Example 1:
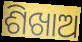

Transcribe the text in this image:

ଶିଖାଅ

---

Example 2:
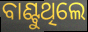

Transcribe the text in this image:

ବାଣ୍ଟୁଥିଲେ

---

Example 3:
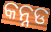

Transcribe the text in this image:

କନ୍ନଡ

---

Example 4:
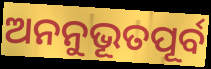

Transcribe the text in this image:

ଅନନୁଭୂତପୂର୍ବ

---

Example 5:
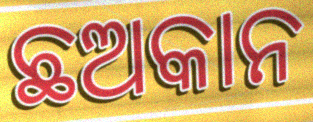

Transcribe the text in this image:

ଛଅକାନ